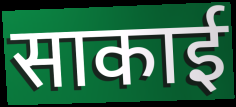
साकाई